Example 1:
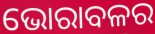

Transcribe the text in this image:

ଭୋରାବଳର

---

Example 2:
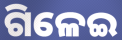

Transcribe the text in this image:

ଗିଳେଇ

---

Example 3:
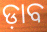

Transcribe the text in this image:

ଡ଼ାବ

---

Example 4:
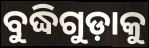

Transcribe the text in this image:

ବୁଦ୍ଧିଗୁଡ଼ାକୁ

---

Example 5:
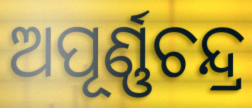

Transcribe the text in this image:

ଅପୂର୍ଣ୍ଣଚନ୍ଦ୍ର